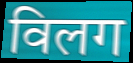
विलग